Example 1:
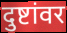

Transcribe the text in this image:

दुष्टांवर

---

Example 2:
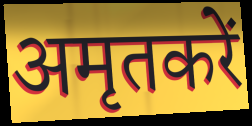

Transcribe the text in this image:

अमृतकरें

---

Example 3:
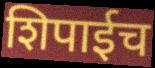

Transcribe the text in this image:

शिपाईच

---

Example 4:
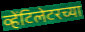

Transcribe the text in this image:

व्हेंटिलेटरच्या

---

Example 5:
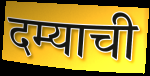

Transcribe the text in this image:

दम्याची